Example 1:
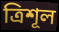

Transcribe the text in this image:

ত্ৰিশূল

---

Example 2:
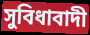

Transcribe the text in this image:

সুবিধাবাদী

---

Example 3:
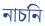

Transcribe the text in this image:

নাচনি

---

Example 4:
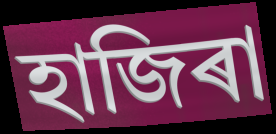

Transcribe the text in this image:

হাজিৰা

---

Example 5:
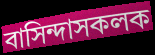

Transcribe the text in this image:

বাসিন্দাসকলক